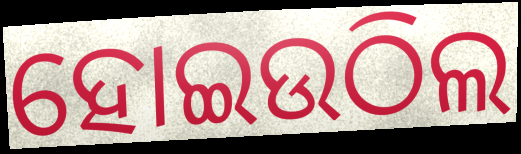
ହୋଇଉଠିଲ